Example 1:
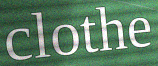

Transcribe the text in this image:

clothe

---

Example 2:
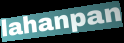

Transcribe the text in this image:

lahanpan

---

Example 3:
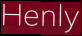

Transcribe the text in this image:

Henly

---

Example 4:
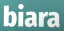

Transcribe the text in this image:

biara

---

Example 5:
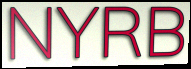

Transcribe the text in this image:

NYRB